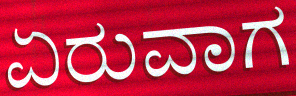
ಏರುವಾಗ